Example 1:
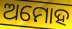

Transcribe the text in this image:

ଅମୋହ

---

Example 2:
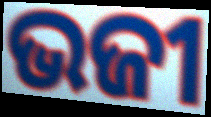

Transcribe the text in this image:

ଭଜୀ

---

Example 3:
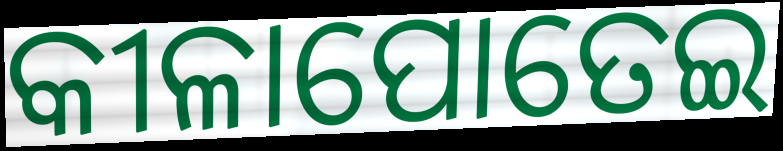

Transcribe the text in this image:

କୀଳାପୋତେଇ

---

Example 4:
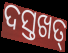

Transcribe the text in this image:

ଦସ୍ତଖତ୍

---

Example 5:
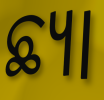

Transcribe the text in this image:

ଛ୍ୟା